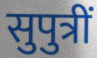
सुपुत्रीं